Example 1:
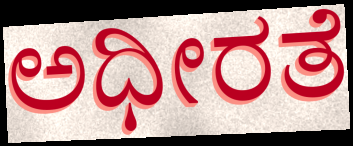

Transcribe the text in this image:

ಅಧೀರತೆ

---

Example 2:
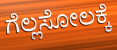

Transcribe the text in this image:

ಗೆಲ್ಲಸೋಲಕ್ಕೆ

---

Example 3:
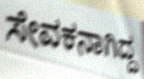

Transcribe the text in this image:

ಸೇವಕನಾಗಿದ್ದ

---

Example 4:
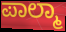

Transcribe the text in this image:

ಪಾಲ್ಮಾ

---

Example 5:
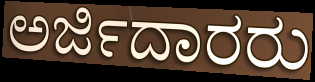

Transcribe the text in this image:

ಅರ್ಜಿದಾರರು